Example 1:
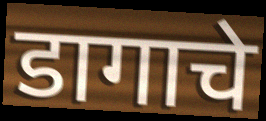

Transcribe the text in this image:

डागाचे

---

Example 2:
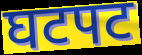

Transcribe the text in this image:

घटपट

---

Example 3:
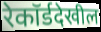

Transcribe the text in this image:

रेकॉर्डदेखील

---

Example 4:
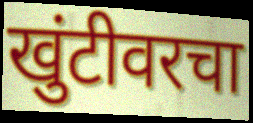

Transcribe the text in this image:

खुंटीवरचा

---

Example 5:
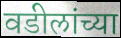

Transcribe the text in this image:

वडीलांच्या